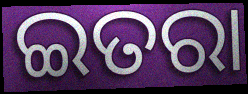
ଇତରା